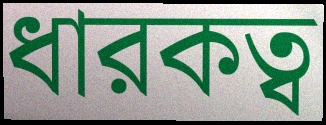
ধারকত্ব